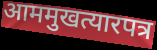
आममुखत्यारपत्र